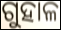
ଗୁହାଳ